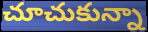
చూచుకున్నా